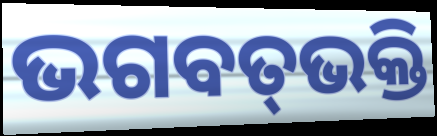
ଭଗବତ୍‌ଭକ୍ତି